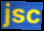
jsc